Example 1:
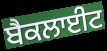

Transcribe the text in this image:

ਬੈਕਲਾਈਟ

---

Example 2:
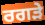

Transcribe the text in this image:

ਰਗੜੇ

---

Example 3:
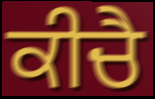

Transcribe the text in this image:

ਕੀਚੈ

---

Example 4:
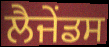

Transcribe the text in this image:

ਲੈਜੇਂਡਸ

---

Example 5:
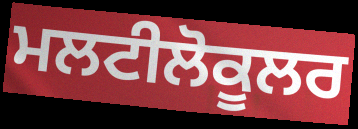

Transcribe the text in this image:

ਮਲਟੀਲੋਕੂਲਰ